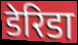
डेरिडा